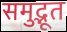
समुद्भूत